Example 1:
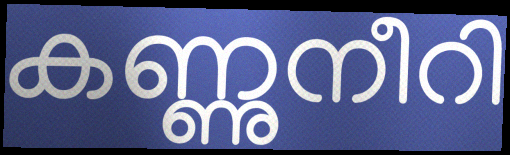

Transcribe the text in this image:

കണ്ണുനീറി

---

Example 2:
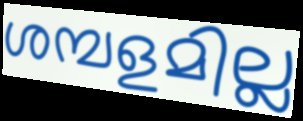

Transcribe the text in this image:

ശമ്പളമില്ല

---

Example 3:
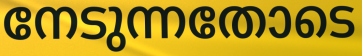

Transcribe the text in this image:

നേടുന്നതോടെ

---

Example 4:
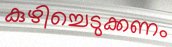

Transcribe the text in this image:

കുഴിച്ചെടുക്കണം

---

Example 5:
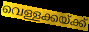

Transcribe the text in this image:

വെള്ളക്കയ്ക്ക്